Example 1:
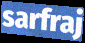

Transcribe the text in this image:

sarfraj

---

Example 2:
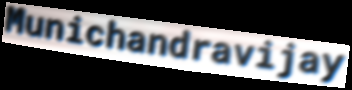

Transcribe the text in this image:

Munichandravijay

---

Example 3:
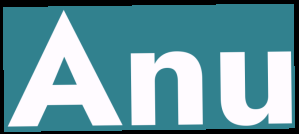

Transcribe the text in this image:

Anu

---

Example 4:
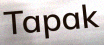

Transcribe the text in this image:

Tapak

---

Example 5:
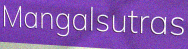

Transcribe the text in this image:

Mangalsutras